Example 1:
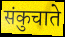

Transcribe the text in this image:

संकुचाते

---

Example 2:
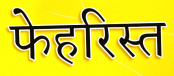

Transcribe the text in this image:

फेहरिस्त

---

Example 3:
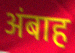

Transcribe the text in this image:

अंबाह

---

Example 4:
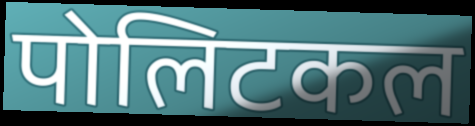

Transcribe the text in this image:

पोलिटकल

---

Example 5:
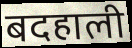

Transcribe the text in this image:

बदहाली